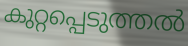
കുറ്റപ്പെടുത്തൽ